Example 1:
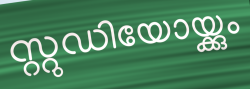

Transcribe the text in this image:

സ്റ്റുഡിയോയ്ക്കും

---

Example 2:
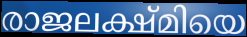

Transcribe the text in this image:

രാജലക്ഷ്മിയെ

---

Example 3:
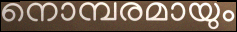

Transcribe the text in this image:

നൊമ്പരമായും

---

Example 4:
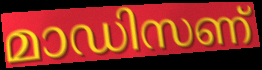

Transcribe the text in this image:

മാഡിസണ്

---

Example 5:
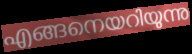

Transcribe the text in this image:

എങ്ങനെയറിയുന്നു